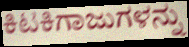
ಕಿಟಕಿಗಾಜುಗಳನ್ನು